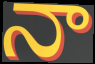
నా